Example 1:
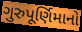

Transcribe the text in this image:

ગુરુપૂર્ણિમાનો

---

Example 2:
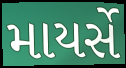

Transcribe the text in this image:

માયર્સે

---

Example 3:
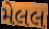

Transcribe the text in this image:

મેલલ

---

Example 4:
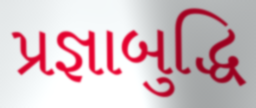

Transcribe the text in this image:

પ્રજ્ઞાબુદ્ધિ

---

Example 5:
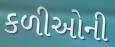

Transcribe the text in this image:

કળીઓની